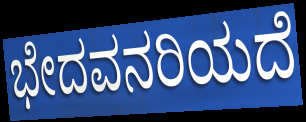
ಭೇದವನರಿಯದೆ